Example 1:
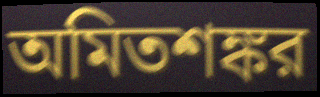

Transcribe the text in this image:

অমিতশঙ্কর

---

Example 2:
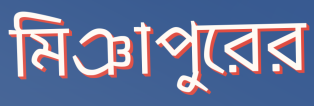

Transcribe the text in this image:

মিঞাপুরের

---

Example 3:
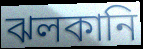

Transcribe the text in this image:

ঝলকানি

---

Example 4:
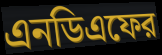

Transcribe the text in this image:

এনডিএফের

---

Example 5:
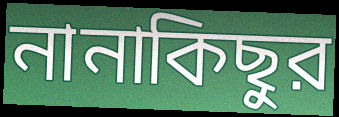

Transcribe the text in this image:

নানাকিছুর